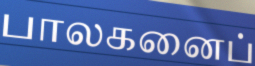
பாலகனைப்